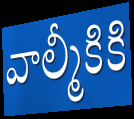
వాల్మీకికి